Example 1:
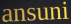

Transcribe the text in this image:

ansuni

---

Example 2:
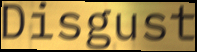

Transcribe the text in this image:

Disgust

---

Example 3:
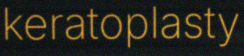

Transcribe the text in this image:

keratoplasty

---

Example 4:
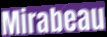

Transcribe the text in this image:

Mirabeau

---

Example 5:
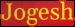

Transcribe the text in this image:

Jogesh